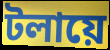
টলায়ে